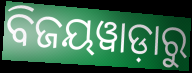
ବିଜୟୱାଡ଼ାରୁ